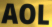
AOL